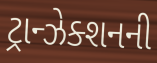
ટ્રાન્ઝેક્શનની